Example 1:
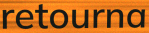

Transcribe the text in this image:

retourna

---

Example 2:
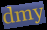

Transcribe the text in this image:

dmy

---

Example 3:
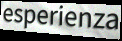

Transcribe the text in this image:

esperienza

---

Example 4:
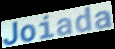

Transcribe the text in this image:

Joiada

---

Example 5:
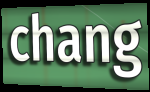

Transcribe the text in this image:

chang